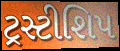
ટ્રસ્ટીશિપ